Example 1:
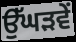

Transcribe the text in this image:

ਉੱਘੜਵੇਂ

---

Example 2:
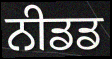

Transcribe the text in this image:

ਨੀਡਡ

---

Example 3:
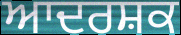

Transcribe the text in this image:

ਆਦਰਸ਼ਕ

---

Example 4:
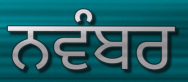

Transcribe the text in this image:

ਨਵੰਬਰ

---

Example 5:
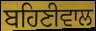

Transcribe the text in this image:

ਬਹਿਣੀਵਾਲ